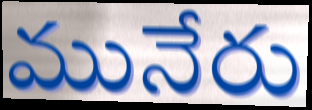
మునేరు